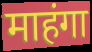
माहंगा